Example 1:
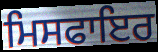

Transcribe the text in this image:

ਮਿਸਫਾਇਰ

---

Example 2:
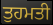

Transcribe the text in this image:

ਤੁਹਮਤੀ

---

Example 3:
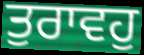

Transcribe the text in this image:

ਤੁਰਾਵਹੁ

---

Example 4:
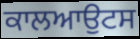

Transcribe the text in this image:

ਕਾਲਆਉਟਸ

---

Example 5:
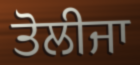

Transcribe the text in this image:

ਤੋਲੀਜਾ